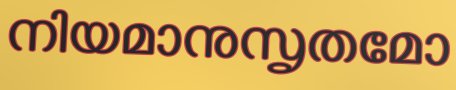
നിയമാനുസൃതമോ